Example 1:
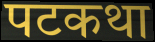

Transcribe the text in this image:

पटकथा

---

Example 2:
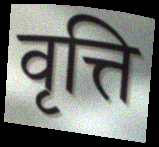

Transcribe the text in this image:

वृत्ति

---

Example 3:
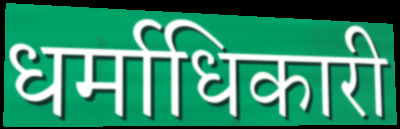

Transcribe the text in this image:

धर्माधिकारी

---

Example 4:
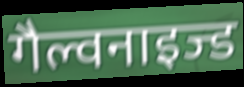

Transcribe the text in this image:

गैल्वनाइज्ड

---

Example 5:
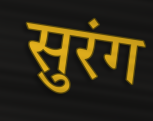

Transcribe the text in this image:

सुरंग